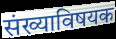
संख्याविषयक